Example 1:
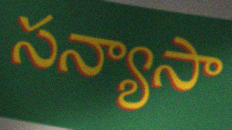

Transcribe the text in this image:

సన్యాసా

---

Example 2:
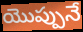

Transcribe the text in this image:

యొప్పునే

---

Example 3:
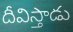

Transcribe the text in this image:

దీవిస్తాడు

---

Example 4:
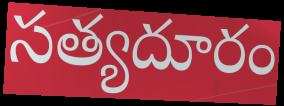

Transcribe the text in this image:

సత్యదూరం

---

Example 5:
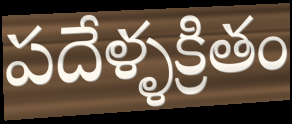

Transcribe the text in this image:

పదేళ్ళక్రితం